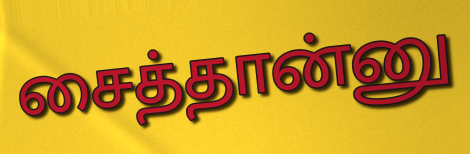
சைத்தான்னு